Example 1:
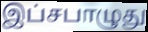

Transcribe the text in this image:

இப்சபாழுது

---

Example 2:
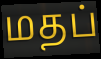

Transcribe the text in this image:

மதப்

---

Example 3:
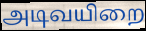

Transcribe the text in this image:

அடிவயிறை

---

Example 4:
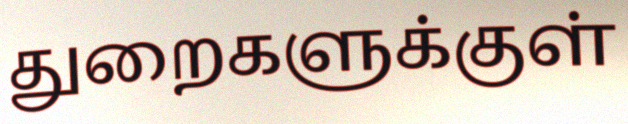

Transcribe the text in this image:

துறைகளுக்குள்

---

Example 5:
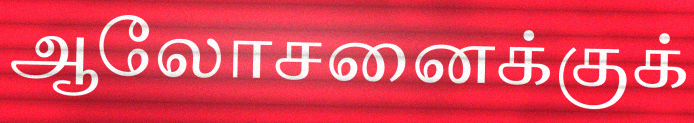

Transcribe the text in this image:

ஆலோசனைக்குக்